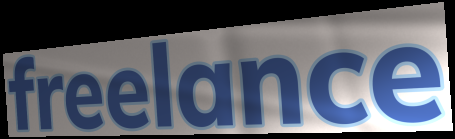
freelance